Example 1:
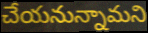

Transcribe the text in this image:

చేయనున్నామని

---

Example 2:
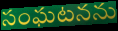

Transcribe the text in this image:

సంఘటనను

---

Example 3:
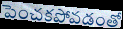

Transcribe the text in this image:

పెంచకపోవడంతో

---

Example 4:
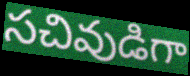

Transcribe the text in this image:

సచివుడిగా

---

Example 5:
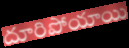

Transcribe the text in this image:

దూరిపోయాయి